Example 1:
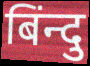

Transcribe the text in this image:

बिंन्दु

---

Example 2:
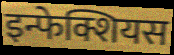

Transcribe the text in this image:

इन्फेक्शियस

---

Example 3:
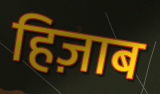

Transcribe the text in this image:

हिज़ाब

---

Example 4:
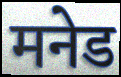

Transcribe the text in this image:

मनेड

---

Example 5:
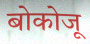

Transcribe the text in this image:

बोकोजू